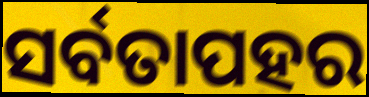
ସର୍ବତାପହର